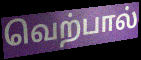
வெற்பால்